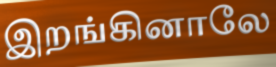
இறங்கினாலே